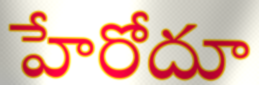
హేరోదూ